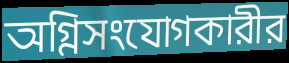
অগ্নিসংযোগকারীর